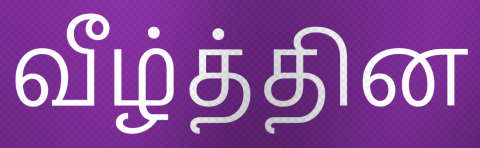
வீழ்த்தின